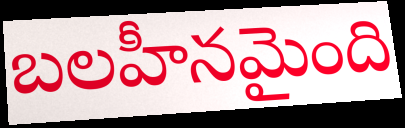
బలహీనమైంది